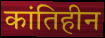
कांतिहीन